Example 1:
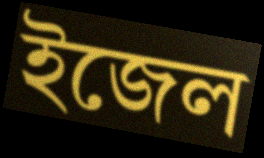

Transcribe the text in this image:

ইজেল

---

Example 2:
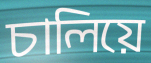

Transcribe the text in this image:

চালিয়ে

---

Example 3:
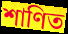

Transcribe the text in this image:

শাণিত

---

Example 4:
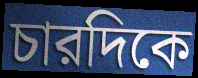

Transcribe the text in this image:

চারদিকে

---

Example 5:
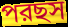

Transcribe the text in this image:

পরছস